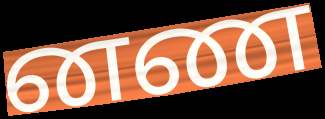
னண